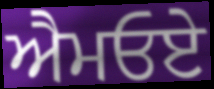
ਐਮਓਏ